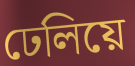
ঢেলিয়ে